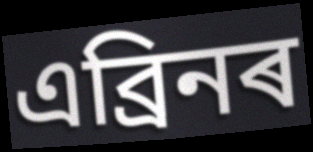
এব্ৰিনৰ